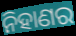
ନିହାଣର